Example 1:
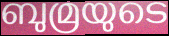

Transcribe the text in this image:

ബുമ്രയുടെ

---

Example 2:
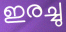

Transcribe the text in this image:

ഇരച്ചു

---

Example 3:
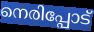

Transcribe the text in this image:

നെരിപ്പോട്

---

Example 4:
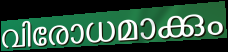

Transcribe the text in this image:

വിരോധമാക്കും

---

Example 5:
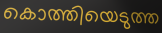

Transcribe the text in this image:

കൊത്തിയെടുത്ത